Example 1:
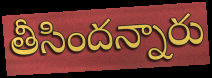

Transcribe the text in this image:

తీసిందన్నారు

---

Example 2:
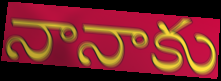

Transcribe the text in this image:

నానాకు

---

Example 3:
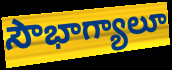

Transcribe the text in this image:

సౌభాగ్యాలూ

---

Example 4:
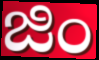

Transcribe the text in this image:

జిం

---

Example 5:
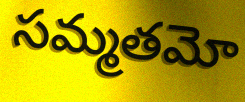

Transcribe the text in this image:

సమ్మతమో